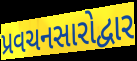
પ્રવચનસારોદ્વાર